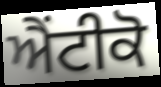
ਐਂਟੀਕੋ